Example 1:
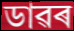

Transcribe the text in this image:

ডাৱৰ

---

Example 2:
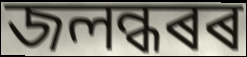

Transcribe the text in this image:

জলন্ধৰৰ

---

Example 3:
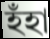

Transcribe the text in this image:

হঁহা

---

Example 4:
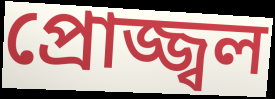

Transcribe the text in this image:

প্ৰোজ্জ্বল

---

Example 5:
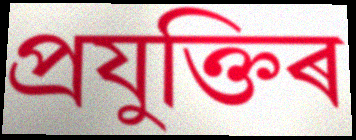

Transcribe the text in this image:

প্ৰযুক্তিৰ